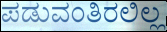
ಪಡುವಂತಿರಲಿಲ್ಲ